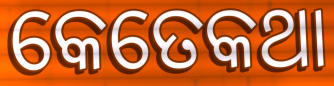
କେତେକଥା